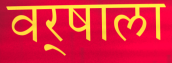
वर्षाला